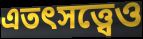
এতৎসত্ত্বেও